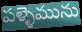
పళ్ళెమును